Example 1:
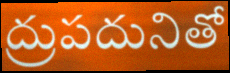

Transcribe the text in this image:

ద్రుపదునితో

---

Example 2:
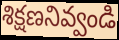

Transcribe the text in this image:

శిక్షణనివ్వండి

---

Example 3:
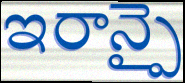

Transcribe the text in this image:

ఇరాన్పై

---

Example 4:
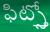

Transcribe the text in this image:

ఫిట్స్తో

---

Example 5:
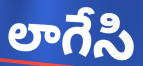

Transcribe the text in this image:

లాగేసి